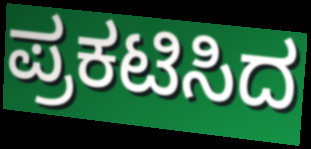
ಪ್ರಕಟಿಸಿದ